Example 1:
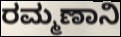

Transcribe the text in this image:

ರಮ್ಮಣಾನಿ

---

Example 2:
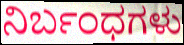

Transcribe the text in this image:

ನಿರ್ಬಂಧಗಳು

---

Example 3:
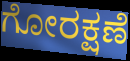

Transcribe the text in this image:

ಗೋರಕ್ಷಣೆ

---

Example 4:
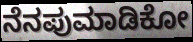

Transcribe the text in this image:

ನೆನಪುಮಾಡಿಕೋ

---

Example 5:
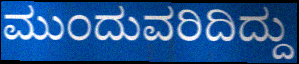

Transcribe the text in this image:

ಮುಂದುವರಿದಿದ್ದು